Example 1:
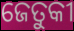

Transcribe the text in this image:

ଜେତୁକୀ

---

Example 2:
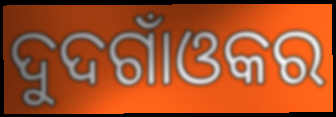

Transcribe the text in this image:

ଦୁଦଗାଁଓକର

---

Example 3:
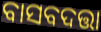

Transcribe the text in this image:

ବାସବଦତ୍ତା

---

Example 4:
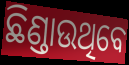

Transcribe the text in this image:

ଛିଣ୍ଡାଉଥିବେ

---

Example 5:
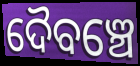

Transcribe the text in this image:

ଦୈବଞ୍ଚେ